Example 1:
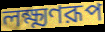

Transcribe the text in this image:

লক্ষ্মণরূপ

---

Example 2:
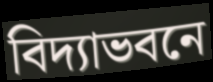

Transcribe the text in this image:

বিদ্যাভবনে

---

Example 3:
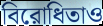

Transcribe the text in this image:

বিরোধিতাও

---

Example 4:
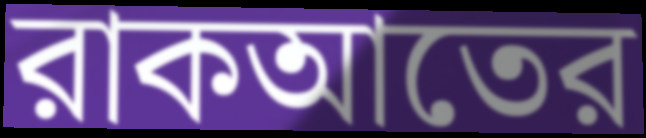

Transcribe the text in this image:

রাকআতের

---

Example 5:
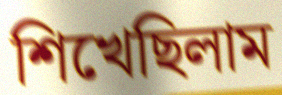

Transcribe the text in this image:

শিখেছিলাম